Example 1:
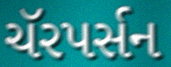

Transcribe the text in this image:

ચૅરપર્સન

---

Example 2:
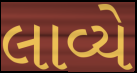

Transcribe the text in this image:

લાવ્યે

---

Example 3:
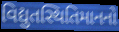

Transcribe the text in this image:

વિદ્યુતસ્થિતિમાનનો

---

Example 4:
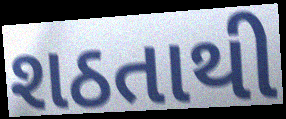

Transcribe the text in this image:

શઠતાથી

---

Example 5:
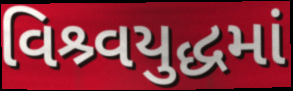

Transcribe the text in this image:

વિશ્ર્વયુદ્ધમાં